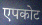
एपकोट